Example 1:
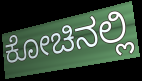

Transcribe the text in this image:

ಕೋಚಿನಲ್ಲಿ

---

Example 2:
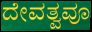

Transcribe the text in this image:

ದೇವತ್ವವೂ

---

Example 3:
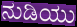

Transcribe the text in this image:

ನುಡಿಯು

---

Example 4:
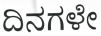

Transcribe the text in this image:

ದಿನಗಳೇ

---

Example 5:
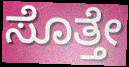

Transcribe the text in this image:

ಸೊತ್ತೇ